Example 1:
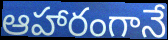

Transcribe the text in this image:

ఆహారంగానే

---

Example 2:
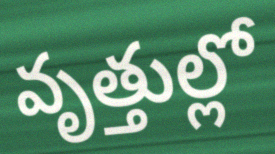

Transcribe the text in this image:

వృత్తుల్లో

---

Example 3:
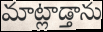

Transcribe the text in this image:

మాట్లాడ్తాను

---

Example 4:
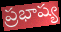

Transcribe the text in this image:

ప్రభాష్య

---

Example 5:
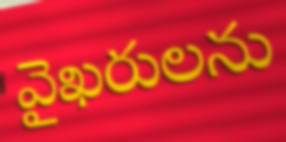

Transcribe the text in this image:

వైఖరులను